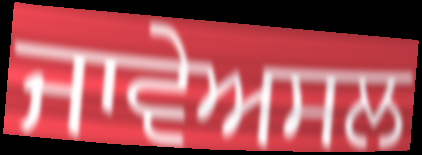
ਜਾਵੇਅਸਲ